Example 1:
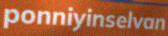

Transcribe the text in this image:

ponniyinselvan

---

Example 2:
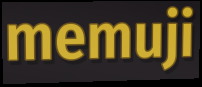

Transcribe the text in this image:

memuji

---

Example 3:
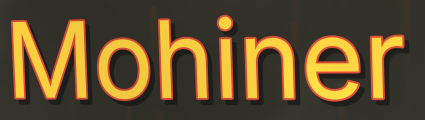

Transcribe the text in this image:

Mohiner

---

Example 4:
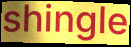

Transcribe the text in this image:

shingle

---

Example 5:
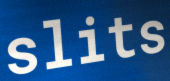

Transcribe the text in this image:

slits